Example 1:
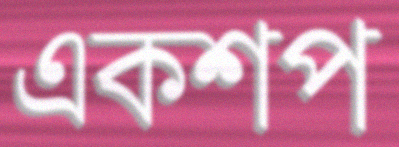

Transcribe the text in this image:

একশপ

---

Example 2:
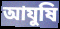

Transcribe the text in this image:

আযুষি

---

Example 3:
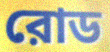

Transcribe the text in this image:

রোড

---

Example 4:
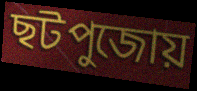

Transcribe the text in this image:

ছটপুজোয়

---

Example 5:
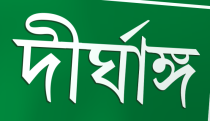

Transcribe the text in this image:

দীর্ঘাঙ্গ